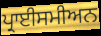
ਪ੍ਰਾਈਸਮੀਅਨ